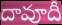
దావూదీ